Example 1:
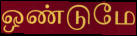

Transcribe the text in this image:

ஒண்டுமே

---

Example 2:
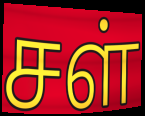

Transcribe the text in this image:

சள்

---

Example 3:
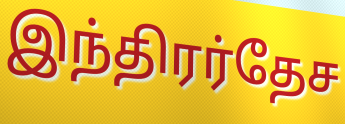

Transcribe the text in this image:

இந்திரர்தேச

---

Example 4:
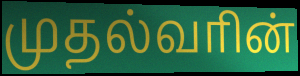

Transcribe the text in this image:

முதல்வரின்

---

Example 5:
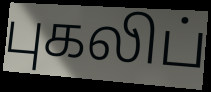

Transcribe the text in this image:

புகலிப்